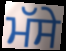
ਮੱਸੇ